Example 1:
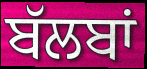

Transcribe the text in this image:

ਬੱਲਬਾਂ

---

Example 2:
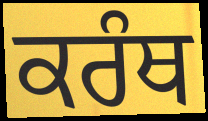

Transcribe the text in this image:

ਕਰੰਥ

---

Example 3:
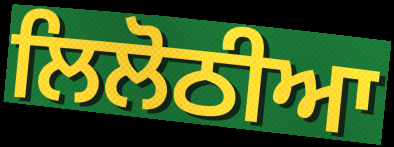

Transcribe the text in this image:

ਲਿਲੋਠੀਆ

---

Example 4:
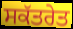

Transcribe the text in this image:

ਸਕੱਤਰੇਤ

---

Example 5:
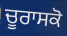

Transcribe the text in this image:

ਚੂਰਾਸਕੋ